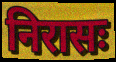
निरासः